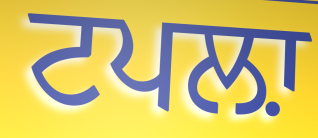
ਟਪਲ਼ਾ